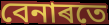
বেনাৰতে